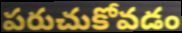
పరుచుకోవడం